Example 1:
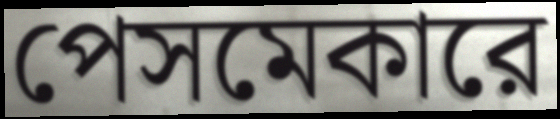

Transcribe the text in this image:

পেসমেকারে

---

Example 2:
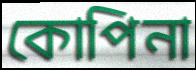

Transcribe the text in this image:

কোপিনা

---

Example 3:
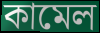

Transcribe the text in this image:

কামেল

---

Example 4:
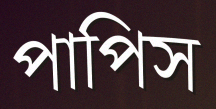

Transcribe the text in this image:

পাপিস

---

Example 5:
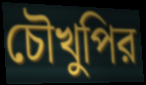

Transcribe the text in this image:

চৌখুপির